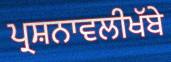
ਪ੍ਰਸ਼ਨਾਵਲੀਖੱਬੇ